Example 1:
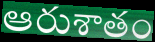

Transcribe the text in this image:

ఆరుశాతం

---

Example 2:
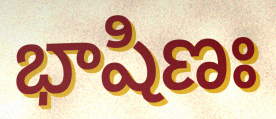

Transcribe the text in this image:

భాషిణః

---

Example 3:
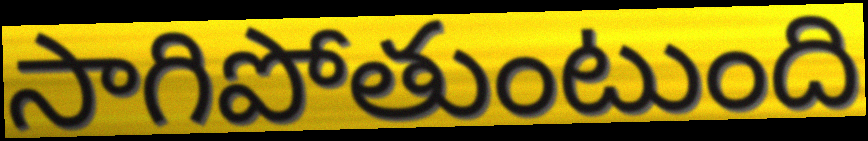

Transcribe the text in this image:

సాగిపోతుంటుంది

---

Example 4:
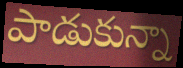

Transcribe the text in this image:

పాడుకున్నా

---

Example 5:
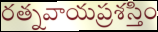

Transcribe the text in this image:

రత్నవాయప్రశస్తిం